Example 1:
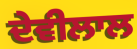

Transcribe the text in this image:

ਦੇਵੀਲਾਲ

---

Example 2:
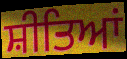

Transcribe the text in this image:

ਸ਼ੀਤਿਆਂ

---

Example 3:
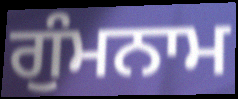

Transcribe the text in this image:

ਗੁੰਮਨਾਮ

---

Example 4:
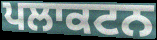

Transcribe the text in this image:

ਪਲਾਕਟਨ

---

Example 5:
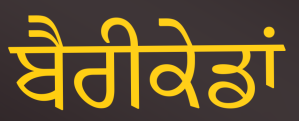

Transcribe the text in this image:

ਬੈਰੀਕੇਡਾਂ